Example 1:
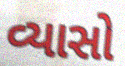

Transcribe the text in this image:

વ્યાસો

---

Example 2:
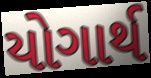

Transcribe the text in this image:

યોગાર્થ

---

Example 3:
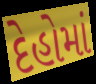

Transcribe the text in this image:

દેહોમાં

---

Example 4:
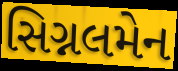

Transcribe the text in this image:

સિગ્નલમેન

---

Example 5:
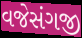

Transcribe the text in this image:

વજેસંગજી